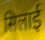
सिलाई